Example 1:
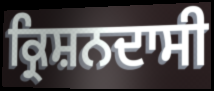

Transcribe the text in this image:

ਕ੍ਰਿਸ਼ਨਦਾਸੀ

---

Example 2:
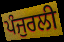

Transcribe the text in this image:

ਪੰਜੁਰਲੀ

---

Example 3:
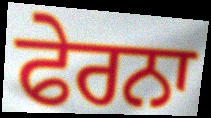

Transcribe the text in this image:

ਫੇਰਨਾ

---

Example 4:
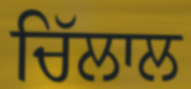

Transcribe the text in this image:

ਚਿੱਲਾਲ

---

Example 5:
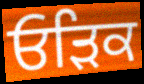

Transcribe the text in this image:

ਓੜਿਕ